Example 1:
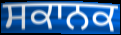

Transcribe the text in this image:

ਸਕਾਨਕ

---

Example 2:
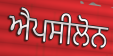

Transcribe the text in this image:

ਐਪਸੀਲੋਨ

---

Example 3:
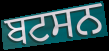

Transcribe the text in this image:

ਬਟਸਨ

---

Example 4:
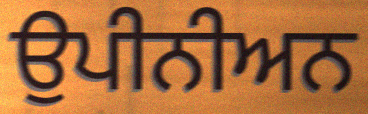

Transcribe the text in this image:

ਉਪੀਨੀਅਨ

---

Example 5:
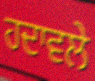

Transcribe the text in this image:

ਹਦਾਵਲੇ